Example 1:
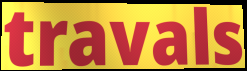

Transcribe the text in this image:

travals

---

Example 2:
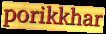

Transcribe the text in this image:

porikkhar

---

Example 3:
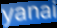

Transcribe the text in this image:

yanai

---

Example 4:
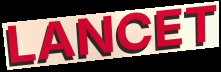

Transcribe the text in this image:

LANCET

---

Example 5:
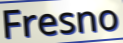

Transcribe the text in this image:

Fresno